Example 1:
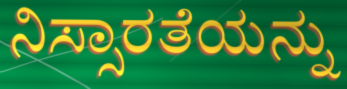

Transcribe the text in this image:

ನಿಸ್ಸಾರತೆಯನ್ನು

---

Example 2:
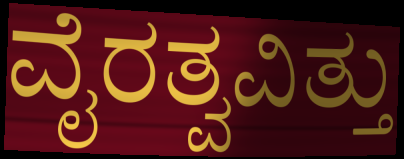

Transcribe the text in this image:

ವೈರತ್ವವಿತ್ತು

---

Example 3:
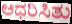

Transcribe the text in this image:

ಆಧರಿಸಿತು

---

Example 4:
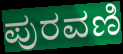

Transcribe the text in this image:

ಪುರವಣಿ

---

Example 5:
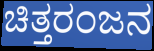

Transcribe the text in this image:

ಚಿತ್ತರಂಜನ